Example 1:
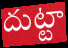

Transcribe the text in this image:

దుట్టా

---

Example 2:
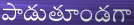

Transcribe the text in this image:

పాడుతూండగా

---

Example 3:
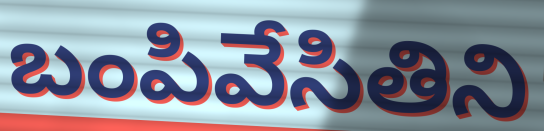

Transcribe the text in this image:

బంపివేసితిని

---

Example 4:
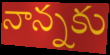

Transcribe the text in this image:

నాన్నకు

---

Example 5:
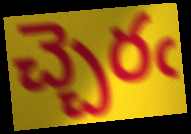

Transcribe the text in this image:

చ్చెరఁ